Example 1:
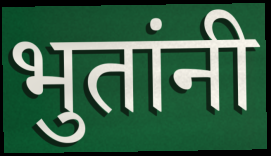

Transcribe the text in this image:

भुतांनी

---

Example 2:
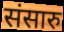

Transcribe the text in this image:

संसारु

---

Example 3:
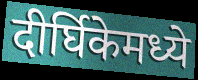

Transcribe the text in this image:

दीर्घिकेमध्ये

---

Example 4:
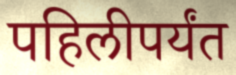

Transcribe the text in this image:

पहिलीपर्यंत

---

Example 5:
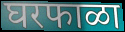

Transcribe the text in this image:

घरफाळा